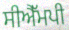
ਸੀਐੱਮਪੀ